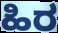
ಹಿರ